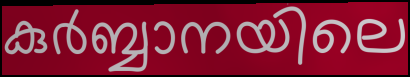
കുർബ്ബാനയിലെ